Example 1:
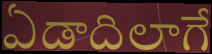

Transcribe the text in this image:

ఏడాదిలాగే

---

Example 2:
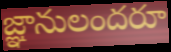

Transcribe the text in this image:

జ్ఞానులందరూ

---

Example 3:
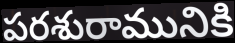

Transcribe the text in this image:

పరశురామునికి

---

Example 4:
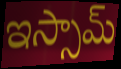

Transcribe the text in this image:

ఇస్సామ్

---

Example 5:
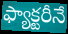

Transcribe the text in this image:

ఫ్యాక్టరీనే